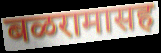
बळरामासह